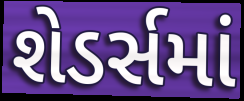
શેડર્સમાં